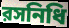
রসনিধি